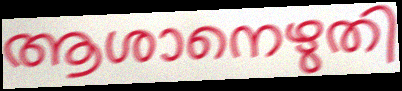
ആശാനെഴുതി